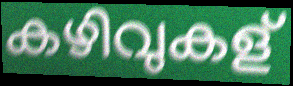
കഴിവുകള്